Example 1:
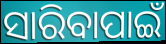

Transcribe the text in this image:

ସାରିବାପାଇଁ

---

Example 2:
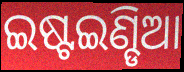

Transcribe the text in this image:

ଇଷ୍ଟଇଣ୍ଡିଆ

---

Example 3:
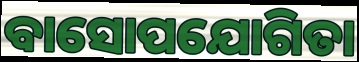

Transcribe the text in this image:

ବାସୋପଯୋଗିତା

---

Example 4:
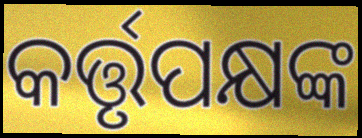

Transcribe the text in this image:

କର୍ତ୍ତୃପକ୍ଷଙ୍କ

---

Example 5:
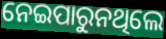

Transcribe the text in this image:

ନେଇପାରୁନଥିଲେ